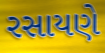
રસાયણે